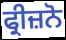
ਫ੍ਰੀਜ਼ਨੋ